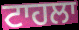
ਟਾਹਲਾ